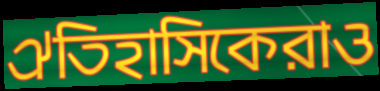
ঐতিহাসিকেরাও